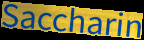
Saccharin